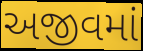
અજીવમાં